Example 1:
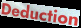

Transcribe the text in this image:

Deduction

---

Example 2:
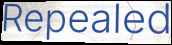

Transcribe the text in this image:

Repealed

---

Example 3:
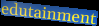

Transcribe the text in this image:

edutainment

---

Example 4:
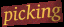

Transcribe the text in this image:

picking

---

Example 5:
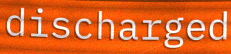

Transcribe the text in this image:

discharged